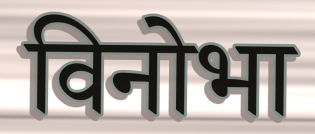
विनोभा